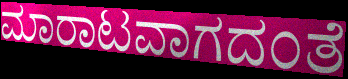
ಮಾರಾಟವಾಗದಂತೆ